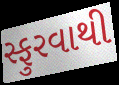
સ્ફુરવાથી